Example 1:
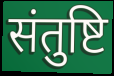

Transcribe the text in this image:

संतुष्टि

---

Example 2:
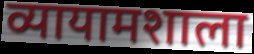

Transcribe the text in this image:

व्यायामशाला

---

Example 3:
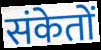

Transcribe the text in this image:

संकेतों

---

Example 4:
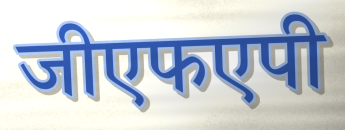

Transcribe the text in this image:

जीएफएपी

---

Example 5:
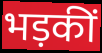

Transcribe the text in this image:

भड़कीं